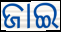
ଜାଇ